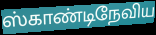
ஸ்காண்டிநேவிய